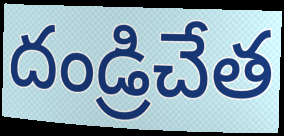
దండ్రిచేత